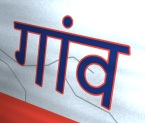
गांव